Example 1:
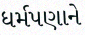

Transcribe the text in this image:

ધર્મપણાને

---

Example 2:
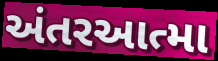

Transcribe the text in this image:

અંતરઆત્મા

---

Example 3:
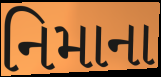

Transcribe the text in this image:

નિમાના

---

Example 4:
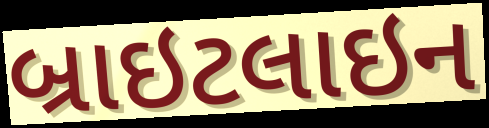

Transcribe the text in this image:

બ્રાઇટલાઇન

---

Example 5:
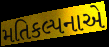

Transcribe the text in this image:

મતિકલ્પનાએ